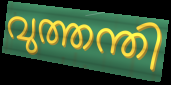
വുത്തന്തി